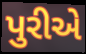
પુરીએ